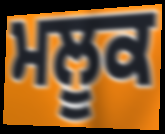
ਮਲੂਕ